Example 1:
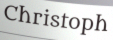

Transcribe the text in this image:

Christoph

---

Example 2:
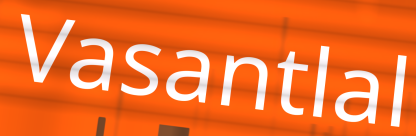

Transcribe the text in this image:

Vasantlal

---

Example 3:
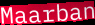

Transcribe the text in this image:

Maarban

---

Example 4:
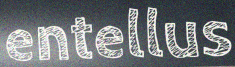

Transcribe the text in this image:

entellus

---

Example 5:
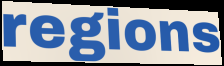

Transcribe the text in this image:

regions